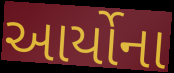
આર્યોના